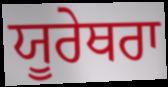
ਯੂਰੇਥਰਾ